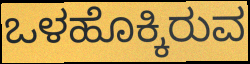
ಒಳಹೊಕ್ಕಿರುವ